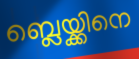
ബ്ലെയ്ക്കിനെ